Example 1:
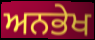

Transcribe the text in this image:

ਅਨਭੇਖ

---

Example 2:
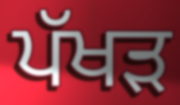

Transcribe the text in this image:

ਪੱਖੜ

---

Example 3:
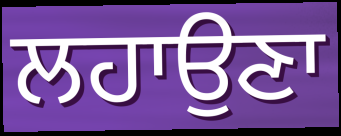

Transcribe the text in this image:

ਲਹਾਉਣਾ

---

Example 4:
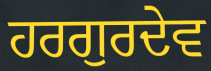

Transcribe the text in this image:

ਹਰਗੁਰਦੇਵ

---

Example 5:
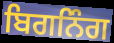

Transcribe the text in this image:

ਬਿਗਨਿੰਗ